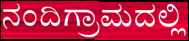
ನಂದಿಗ್ರಾಮದಲ್ಲಿ